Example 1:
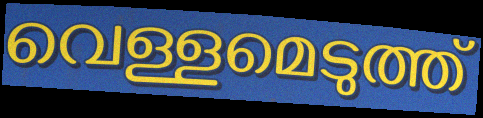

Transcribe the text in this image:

വെള്ളമെടുത്ത്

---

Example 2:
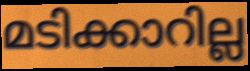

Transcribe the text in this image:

മടിക്കാറില്ല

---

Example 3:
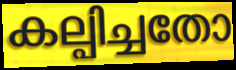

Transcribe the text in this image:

കല്പിച്ചതോ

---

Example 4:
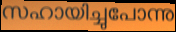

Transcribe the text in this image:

സഹായിച്ചുപോന്നു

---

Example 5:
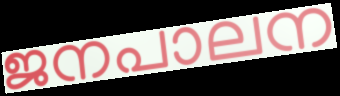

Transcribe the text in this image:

ജനപാലന